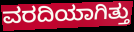
ವರದಿಯಾಗಿತ್ತು